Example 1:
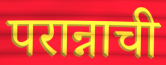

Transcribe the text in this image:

परान्नाची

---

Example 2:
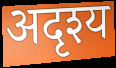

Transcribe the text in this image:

अदृश्य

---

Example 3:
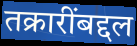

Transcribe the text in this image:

तक्रारींबद्दल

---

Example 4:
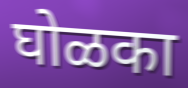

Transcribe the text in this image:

घोळका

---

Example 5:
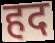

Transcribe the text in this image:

हद